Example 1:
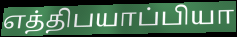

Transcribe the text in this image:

எத்திபயாப்பியா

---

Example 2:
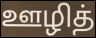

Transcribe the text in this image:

ஊழித்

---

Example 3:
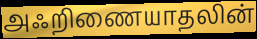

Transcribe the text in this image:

அஃறிணையாதலின்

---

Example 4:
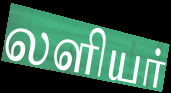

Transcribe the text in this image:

லளியர்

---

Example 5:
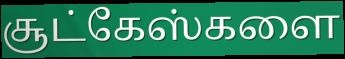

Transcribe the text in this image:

சூட்கேஸ்களை